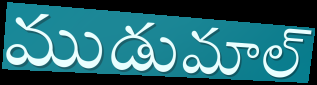
ముడుమాల్